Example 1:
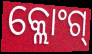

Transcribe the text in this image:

କ୍ଲୋଂଗ୍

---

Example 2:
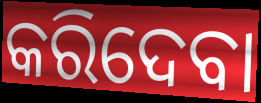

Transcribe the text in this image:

କରିଦେବା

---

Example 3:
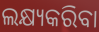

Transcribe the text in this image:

ଲକ୍ଷ୍ୟକରିବା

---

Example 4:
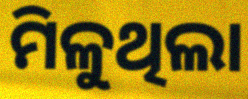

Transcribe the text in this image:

ମିଳୁଥିଲା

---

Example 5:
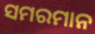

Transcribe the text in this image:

ସମରମାନ